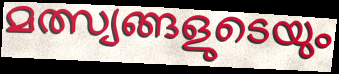
മത്സ്യങ്ങളുടെയും